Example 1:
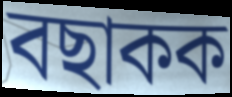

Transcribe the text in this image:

বছাকক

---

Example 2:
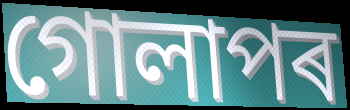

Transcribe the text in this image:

গোলাপৰ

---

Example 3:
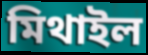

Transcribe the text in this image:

মিথাইল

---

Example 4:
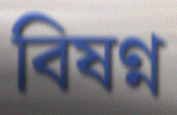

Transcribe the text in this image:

বিষণ্ন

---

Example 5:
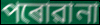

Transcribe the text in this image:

পৰোৱানা